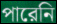
পারেনি